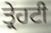
ਤ੍ਰੇਹਟੀ